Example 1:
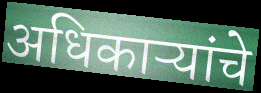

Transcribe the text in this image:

अधिकाऱ्यांचे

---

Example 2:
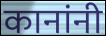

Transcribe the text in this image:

कानांनी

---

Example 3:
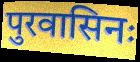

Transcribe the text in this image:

पुरवासिनः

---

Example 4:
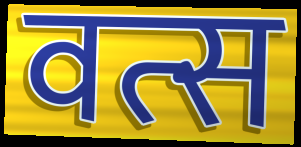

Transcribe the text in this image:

वत्स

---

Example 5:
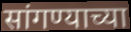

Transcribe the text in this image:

सांगण्याच्या